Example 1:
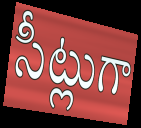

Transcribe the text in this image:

సీట్లుగా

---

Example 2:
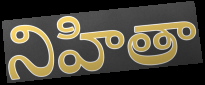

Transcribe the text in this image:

నిహితా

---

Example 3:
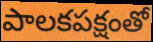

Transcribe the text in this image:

పాలకపక్షంతో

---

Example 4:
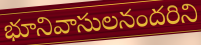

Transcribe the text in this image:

భూనివాసులనందరిని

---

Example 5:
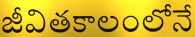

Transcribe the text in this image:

జీవితకాలంలోనే